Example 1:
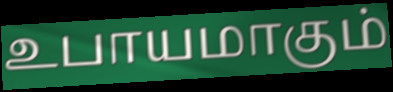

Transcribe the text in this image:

உபாயமாகும்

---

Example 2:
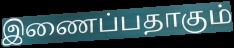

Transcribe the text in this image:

இணைப்பதாகும்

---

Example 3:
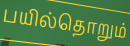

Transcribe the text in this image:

பயில்தொறும்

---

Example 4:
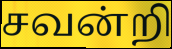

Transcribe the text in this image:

சவன்றி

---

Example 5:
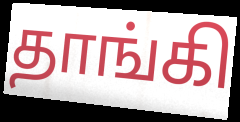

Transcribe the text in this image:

தாங்கி